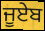
ਜੂਏਬ